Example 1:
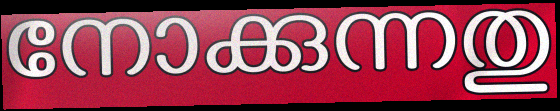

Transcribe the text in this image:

നോക്കുന്നതു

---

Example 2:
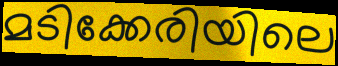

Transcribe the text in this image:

മടിക്കേരിയിലെ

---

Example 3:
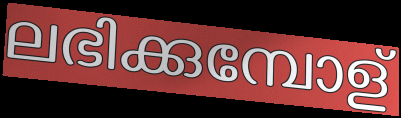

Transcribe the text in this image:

ലഭിക്കുമ്പോള്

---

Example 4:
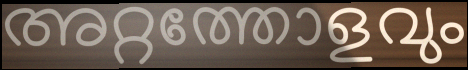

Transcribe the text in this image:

അറ്റത്തോളവും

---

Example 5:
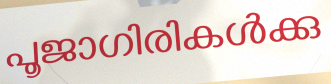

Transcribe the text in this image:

പൂജാഗിരികൾക്കു